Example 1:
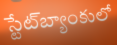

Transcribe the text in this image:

స్టేట్‌బ్యాంకులో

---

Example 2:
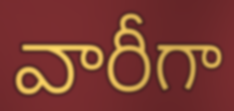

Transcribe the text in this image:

వారీగా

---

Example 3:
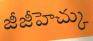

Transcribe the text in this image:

జీజీహెచ్కు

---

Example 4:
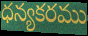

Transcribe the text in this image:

ధన్యకరము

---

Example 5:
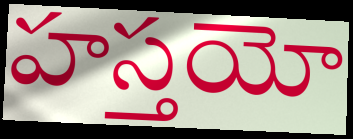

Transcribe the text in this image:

హస్తయో